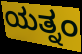
ಯತ್ನಂ